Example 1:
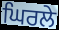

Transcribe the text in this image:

ਘਿਰਲੇ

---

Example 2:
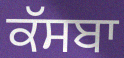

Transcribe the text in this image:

ਕੱਸਬਾ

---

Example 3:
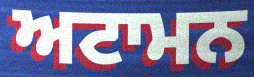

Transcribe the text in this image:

ਅਟਾਮਨ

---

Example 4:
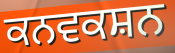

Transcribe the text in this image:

ਕਨਵਕਸ਼ਨ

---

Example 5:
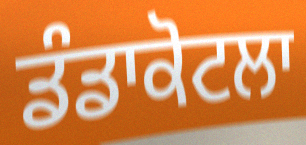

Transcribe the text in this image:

ਡੰਡਾਕੋਟਲਾ